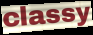
classy